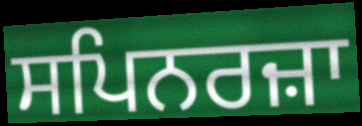
ਸਪਿਨਰਜ਼ਾ